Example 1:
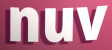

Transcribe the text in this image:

nuv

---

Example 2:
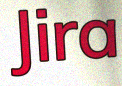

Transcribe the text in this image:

Jira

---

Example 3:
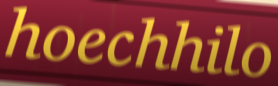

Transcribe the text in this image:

hoechhilo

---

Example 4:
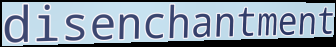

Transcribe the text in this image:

disenchantment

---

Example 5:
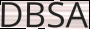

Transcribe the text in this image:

DBSA